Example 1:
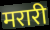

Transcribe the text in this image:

मरारी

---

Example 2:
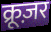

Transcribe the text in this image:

क्रूज़र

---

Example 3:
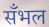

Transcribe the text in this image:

सँभल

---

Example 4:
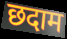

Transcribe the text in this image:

छदाम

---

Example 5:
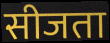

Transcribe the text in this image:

सीजता